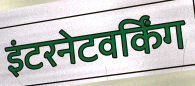
इंटरनेटवर्किंग